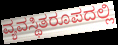
ವ್ಯವಸ್ಥಿತರೂಪದಲ್ಲಿ